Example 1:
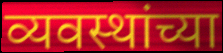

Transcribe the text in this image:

व्यवस्थांच्या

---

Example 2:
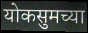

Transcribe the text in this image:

योकसुमच्या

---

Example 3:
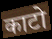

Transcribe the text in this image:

काटो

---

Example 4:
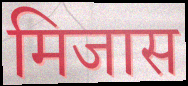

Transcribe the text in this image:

मिजास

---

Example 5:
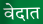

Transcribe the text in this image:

वेदात